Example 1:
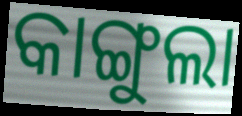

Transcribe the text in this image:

କାଙ୍ଗୁଲା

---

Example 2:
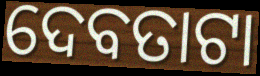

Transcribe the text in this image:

ଦେବତାଟା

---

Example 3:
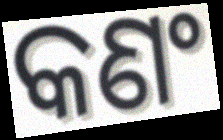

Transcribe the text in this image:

କଣଂ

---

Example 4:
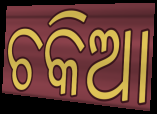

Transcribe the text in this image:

ଚକିଆ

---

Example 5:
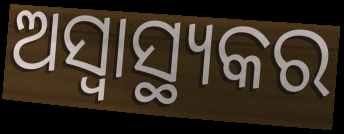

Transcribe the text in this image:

ଅସ୍ବାସ୍ଥ୍ୟକର